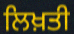
ਲਿਖ਼ਤੀ